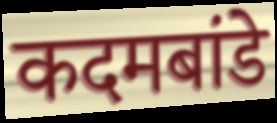
कदमबांडे